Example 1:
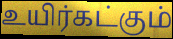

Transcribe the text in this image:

உயிர்கட்கும்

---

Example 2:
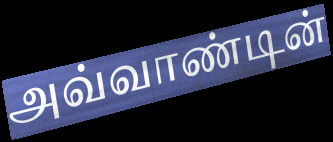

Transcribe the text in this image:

அவ்வாண்டின்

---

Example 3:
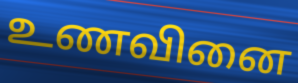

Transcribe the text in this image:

உணவினை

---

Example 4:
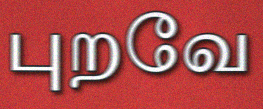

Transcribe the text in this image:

புறவே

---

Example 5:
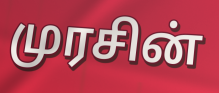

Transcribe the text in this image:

முரசின்